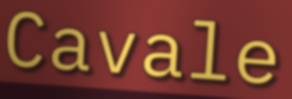
Cavale